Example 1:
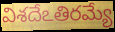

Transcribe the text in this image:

విశదేఽతిరమ్యే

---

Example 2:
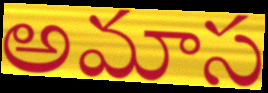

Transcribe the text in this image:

అమాస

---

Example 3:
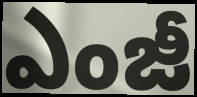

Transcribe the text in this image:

ఎంజీ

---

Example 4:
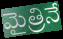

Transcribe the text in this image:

మైత్రినే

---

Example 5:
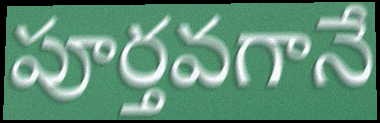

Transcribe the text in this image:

పూర్తవగానే